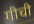
गीची